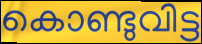
കൊണ്ടുവിട്ട